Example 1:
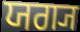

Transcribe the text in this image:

ਯਗ੍ਯ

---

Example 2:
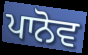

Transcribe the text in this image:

ਪਾਨੋਵ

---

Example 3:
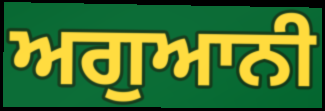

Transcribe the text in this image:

ਅਗੁਆਨੀ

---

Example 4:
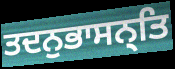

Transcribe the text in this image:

ਤਦਨੁਭਾਸਨ੍ਤਿ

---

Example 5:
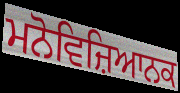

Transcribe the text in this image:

ਮਨੋਵਿਜ਼ਿਆਨਕ